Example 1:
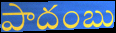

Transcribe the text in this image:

పాదంబు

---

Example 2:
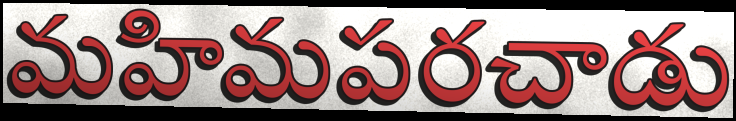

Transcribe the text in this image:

మహిమపరచాడు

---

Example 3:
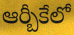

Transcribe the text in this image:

ఆర్బీకేలో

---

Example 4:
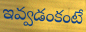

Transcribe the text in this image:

ఇవ్వడంకంటే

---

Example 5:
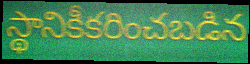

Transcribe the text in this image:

స్థానికీకరించబడిన